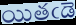
యితఁడె